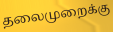
தலைமுறைக்கு